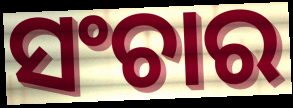
ସଂଚାର